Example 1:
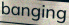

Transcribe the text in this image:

banging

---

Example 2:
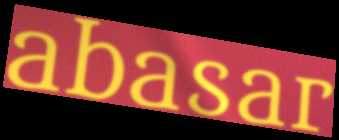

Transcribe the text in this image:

abasar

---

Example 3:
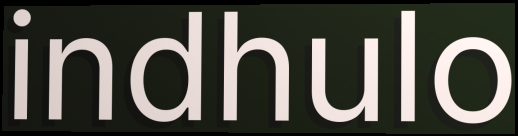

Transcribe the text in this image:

indhulo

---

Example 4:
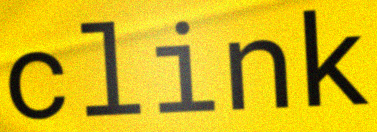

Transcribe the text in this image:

clink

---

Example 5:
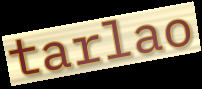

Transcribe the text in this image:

tarlao